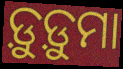
ଡ଼ୁଡ଼ୁମା